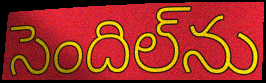
సెందిల్‌ను